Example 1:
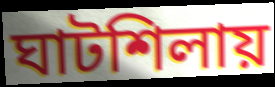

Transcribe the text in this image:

ঘাটশিলায়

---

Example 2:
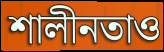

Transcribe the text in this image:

শালীনতাও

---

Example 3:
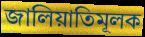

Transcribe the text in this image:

জালিয়াতিমূলক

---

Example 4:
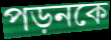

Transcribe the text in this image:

পড়নকে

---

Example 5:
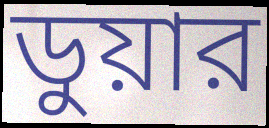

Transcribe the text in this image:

ডুয়ার